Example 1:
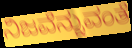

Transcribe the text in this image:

ನಿಜವೆನ್ನುವಂತೆ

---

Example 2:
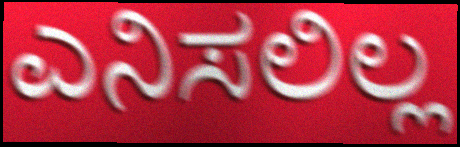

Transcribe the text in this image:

ಎನಿಸಲಿಲ್ಲ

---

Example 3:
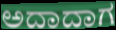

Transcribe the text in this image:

ಅದಾದಾಗ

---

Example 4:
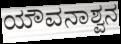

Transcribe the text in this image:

ಯೌವನಾಶ್ವನ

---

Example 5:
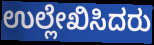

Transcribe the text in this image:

ಉಲ್ಲೇಖಿಸಿದರು